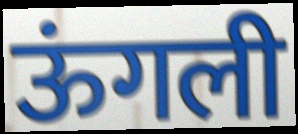
ऊंगली